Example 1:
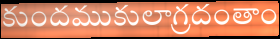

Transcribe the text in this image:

కుందముకులాగ్రదంతాం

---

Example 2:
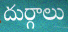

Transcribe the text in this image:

దుర్గాలు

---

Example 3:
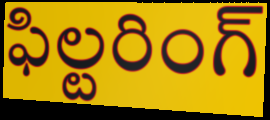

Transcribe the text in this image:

ఫిల్టరింగ్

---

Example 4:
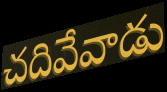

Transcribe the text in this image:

చదివేవాడు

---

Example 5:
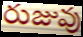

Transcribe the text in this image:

రుజువు